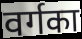
वर्गका